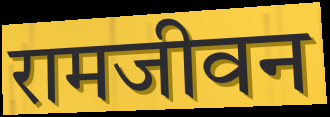
रामजीवन